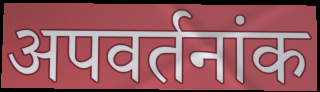
अपवर्तनांक